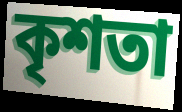
কৃশতা